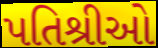
પતિશ્રીઓ